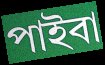
পাইবা